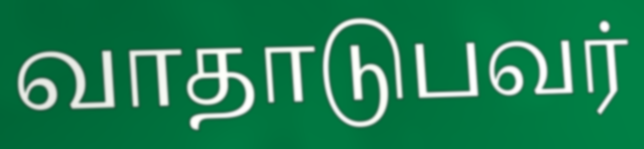
வாதாடுபவர்